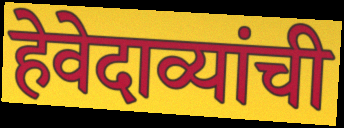
हेवेदाव्यांची